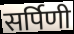
सर्पिणी